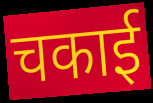
चकाई